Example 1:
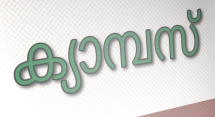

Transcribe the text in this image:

ക്യാമ്പസ്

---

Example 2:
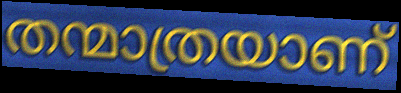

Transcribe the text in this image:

തന്മാത്രയാണ്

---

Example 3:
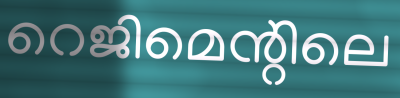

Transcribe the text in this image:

റെജിമെന്റിലെ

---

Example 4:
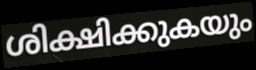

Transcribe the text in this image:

ശിക്ഷിക്കുകയും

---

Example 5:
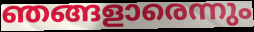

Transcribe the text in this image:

ഞങ്ങളാരെന്നും